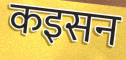
कइसन